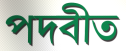
পদবীত